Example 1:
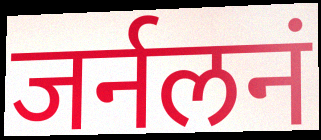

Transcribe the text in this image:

जर्नलनं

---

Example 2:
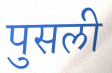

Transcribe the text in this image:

पुसली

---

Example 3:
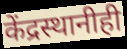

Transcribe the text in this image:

केंद्रस्थानीही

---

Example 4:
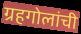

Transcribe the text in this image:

ग्रहगोलांची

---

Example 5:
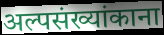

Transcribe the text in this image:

अल्पसंख्यांकाना